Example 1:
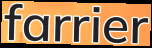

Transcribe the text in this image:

farrier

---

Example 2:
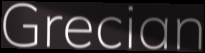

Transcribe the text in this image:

Grecian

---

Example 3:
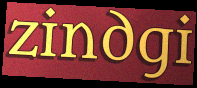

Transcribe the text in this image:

zindgi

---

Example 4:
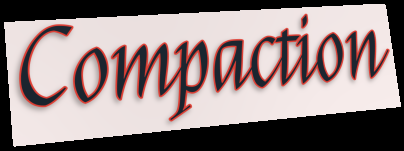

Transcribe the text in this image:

Compaction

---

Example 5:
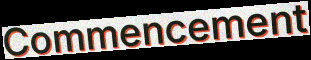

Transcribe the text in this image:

Commencement